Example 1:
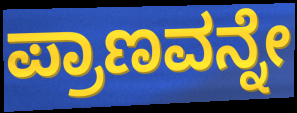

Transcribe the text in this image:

ಪ್ರಾಣವನ್ನೇ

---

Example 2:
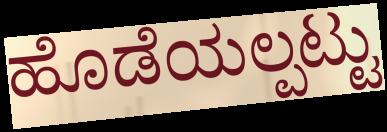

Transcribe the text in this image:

ಹೊಡೆಯಲ್ಪಟ್ಟು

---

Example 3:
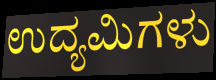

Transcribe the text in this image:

ಉದ್ಯಮಿಗಳು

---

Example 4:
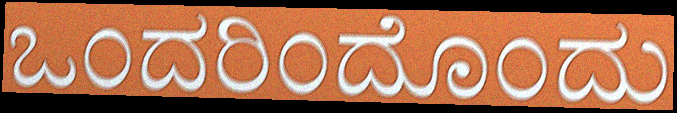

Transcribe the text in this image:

ಒಂದರಿಂದೊಂದು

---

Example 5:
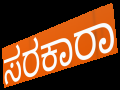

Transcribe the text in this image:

ಸರಕಾರಾ